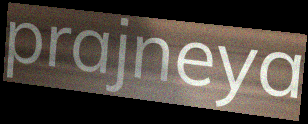
prajneya